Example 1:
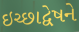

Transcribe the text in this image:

ઇચ્છાદ્વેષને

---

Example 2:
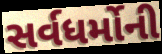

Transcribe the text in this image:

સર્વધર્મોની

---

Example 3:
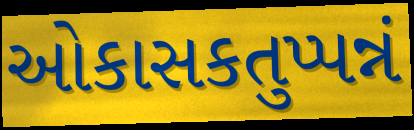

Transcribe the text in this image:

ઓકાસકતુપ્પન્નં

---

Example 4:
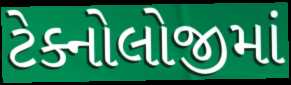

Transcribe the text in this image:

ટેક્નોલોજીમાં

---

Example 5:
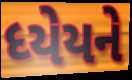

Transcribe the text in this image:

ધ્યેયને